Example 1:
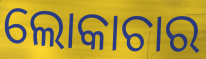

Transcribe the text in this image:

ଲୋକାଚାର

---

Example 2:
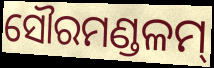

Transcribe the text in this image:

ସୌରମଣ୍ଡଳମ୍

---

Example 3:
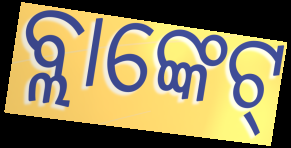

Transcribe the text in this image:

ବ୍ଲାଙ୍କେଟ୍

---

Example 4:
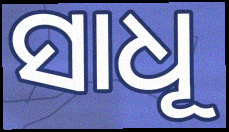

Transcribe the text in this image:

ସାଧୂ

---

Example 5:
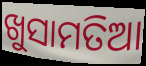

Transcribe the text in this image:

ଖୁସାମତିଆ